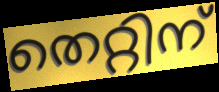
തെറ്റിന്